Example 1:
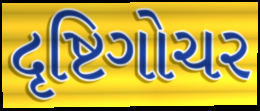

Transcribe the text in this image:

દૃષ્ટિગોચર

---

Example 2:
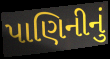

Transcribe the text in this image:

પાણિનીનું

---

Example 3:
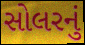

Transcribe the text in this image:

સોલરનું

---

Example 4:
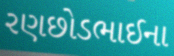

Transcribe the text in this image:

રણછોડભાઈના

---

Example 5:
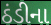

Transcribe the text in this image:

ઠંડીના